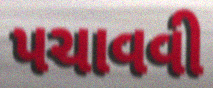
પચાવવી